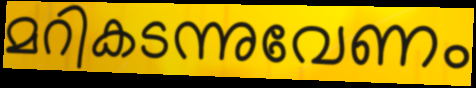
മറികടന്നുവേണം